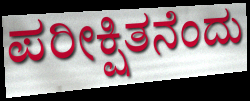
ಪರೀಕ್ಷಿತನೆಂದು